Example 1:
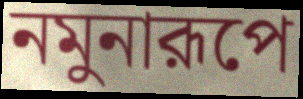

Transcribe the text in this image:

নমুনারূপে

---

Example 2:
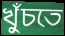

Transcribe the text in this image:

খুঁচতে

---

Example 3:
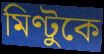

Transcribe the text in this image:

মিণ্টুকে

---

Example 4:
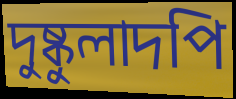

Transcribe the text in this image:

দুষ্কুলাদপি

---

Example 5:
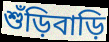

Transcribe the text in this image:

শুঁড়িবাড়ি